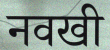
नवखी